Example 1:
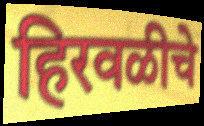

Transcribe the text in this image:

हिरवळीचे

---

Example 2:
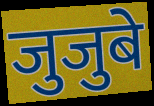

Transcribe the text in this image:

जुजुबे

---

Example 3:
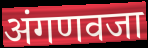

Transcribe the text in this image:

अंगणवजा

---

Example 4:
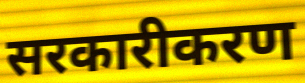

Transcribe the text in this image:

सरकारीकरण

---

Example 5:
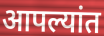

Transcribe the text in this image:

आपल्यांत